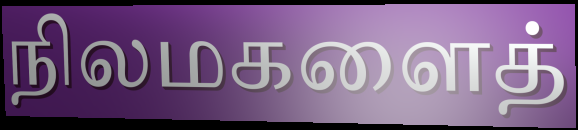
நிலமகளைத்